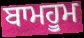
ਬਾਮਹੂਮ